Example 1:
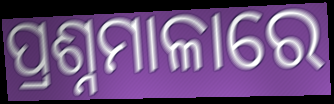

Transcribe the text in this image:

ପ୍ରଶ୍ନମାଳାରେ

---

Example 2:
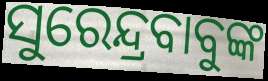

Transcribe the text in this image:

ସୁରେନ୍ଦ୍ରବାବୁଙ୍କ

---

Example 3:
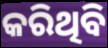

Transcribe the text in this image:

କରିଥିବି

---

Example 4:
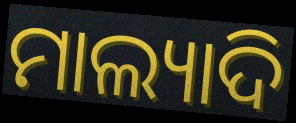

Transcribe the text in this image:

ମାଲ୍ୟାଦି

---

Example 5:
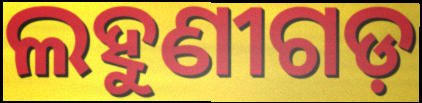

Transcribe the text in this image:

ଲହୁଣୀଗଡ଼